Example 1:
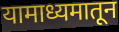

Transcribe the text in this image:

यामाध्यमातून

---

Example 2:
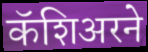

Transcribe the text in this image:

कॅशिअरने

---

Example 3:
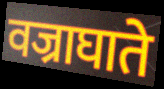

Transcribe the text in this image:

वज्राघाते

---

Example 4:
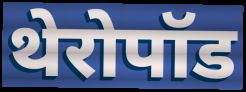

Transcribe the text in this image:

थेरोपॉड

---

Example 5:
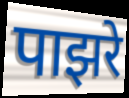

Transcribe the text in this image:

पाझरे